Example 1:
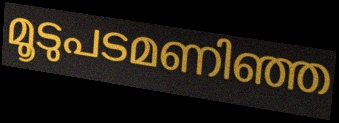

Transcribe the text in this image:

മൂടുപടമണിഞ്ഞ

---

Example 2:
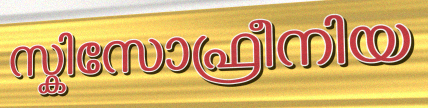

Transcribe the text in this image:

സ്കിസോഫ്രീനിയ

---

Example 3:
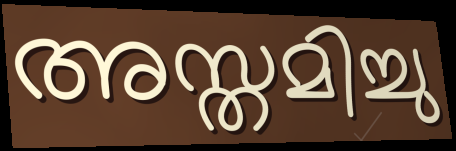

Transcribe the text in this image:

അസ്തമിച്ചു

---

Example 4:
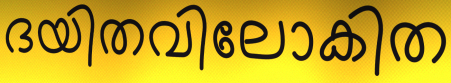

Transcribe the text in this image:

ദയിതവിലോകിത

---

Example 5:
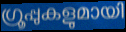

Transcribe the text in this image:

ഗ്രൂപ്പുകളുമായി